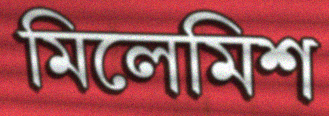
মিলেমিশ